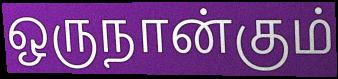
ஒருநான்கும்